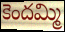
కెందమ్మి